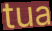
tua